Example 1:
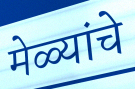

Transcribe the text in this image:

मेळ्यांचे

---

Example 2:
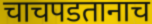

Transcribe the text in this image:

चाचपडतानाच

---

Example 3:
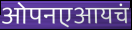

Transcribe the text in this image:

ओपनएआयचं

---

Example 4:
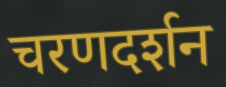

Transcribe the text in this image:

चरणदर्शन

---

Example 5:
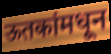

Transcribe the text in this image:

ऊतकांमधून